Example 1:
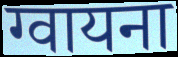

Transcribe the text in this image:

ग्वायना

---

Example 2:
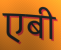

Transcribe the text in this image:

एबी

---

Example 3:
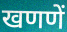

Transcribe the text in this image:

खणणें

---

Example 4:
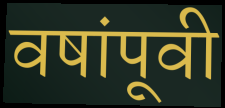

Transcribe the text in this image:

वषांपूवी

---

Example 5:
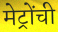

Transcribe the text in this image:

मेट्रोंची